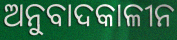
ଅନୁବାଦକାଳୀନ